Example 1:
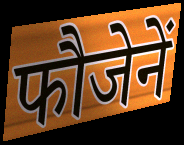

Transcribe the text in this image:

फौजेनें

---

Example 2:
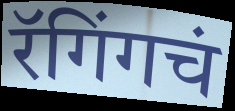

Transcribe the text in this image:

रॅगिंगचं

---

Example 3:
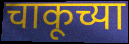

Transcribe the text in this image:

चाकूच्या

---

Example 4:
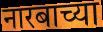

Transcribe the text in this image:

नारबाच्या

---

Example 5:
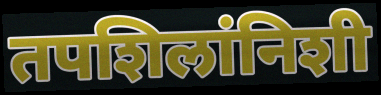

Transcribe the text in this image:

तपशिलांनिशी